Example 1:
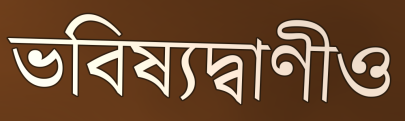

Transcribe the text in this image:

ভবিষ্যদ্বাণীও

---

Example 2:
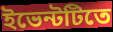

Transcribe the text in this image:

ইভেন্টটিতে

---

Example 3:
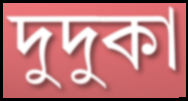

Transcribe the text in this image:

দুদুকা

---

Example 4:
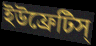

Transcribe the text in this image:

ইউফ্রেটিস্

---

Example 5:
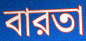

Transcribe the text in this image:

বারতা